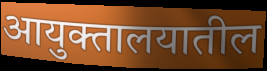
आयुक्तालयातील